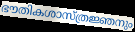
ഭൗതികശാസ്ത്രജ്ഞനും